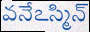
వనేఽస్మిన్